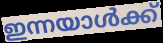
ഇന്നയാൾക്ക്